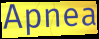
Apnea